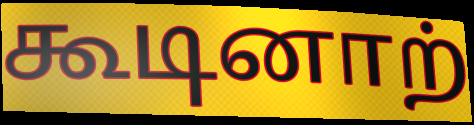
கூடினாற்